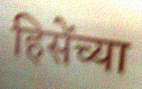
हिसेंच्या